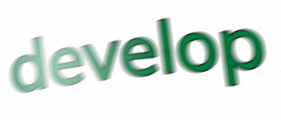
develop